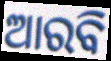
ଆରବି